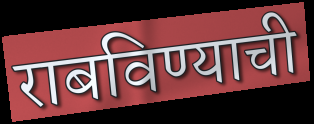
राबविण्याची